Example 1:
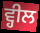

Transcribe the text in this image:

ਵ੍ਹੀਲ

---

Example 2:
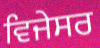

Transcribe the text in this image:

ਵਿਜੇਸਰ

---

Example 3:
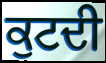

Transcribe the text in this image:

ਕੁਟਦੀ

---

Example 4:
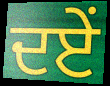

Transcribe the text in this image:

ਦਏਂ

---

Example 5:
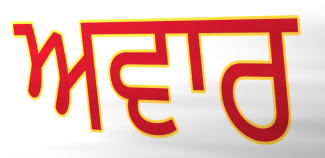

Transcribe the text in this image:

ਅਵਾਰ